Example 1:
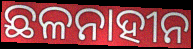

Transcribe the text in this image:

ଛଳନାହୀନ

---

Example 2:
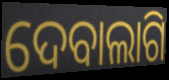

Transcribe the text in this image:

ଦେବାଲାଗି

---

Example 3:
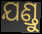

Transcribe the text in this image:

ଯଣ୍ଡୁ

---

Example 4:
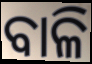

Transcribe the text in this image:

ବାଳି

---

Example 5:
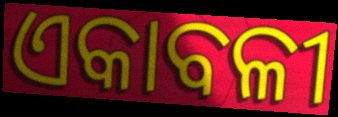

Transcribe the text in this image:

ଏକାବଳୀ